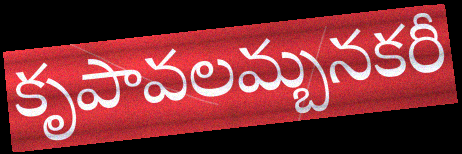
కృపావలమ్బనకరీ